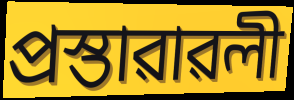
প্ৰস্তাৱাৱলী